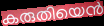
കരുതിയെൻ